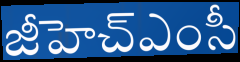
జీహెచ్ఎంసీ